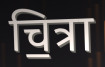
चि॒त्रा